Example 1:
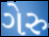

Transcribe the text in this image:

ગેરુ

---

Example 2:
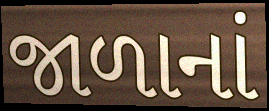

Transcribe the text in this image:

જાળાનાં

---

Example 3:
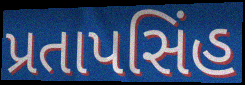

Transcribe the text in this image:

પ્રતાપસિંહ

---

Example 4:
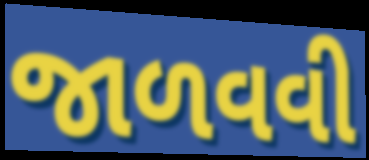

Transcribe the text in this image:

જાળવવી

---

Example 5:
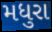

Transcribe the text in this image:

મધુરા